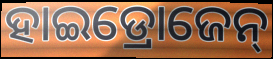
ହାଇଡ୍ରୋଜେନ୍